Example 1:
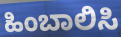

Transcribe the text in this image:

ಹಿಂಬಾಲಿಸಿ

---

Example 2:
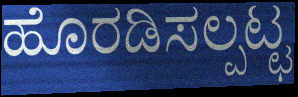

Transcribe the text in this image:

ಹೊರಡಿಸಲ್ಪಟ್ಟ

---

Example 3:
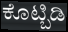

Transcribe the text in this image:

ಕೊಟ್ಬಿಡಿ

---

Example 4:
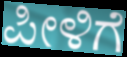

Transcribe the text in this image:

ಪೀಳಿಗೆ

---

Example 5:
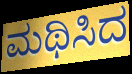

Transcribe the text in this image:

ಮಥಿಸಿದ